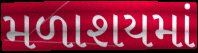
મળાશયમાં